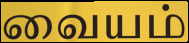
வையம்